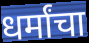
धर्मांचा